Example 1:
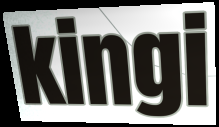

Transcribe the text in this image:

kingi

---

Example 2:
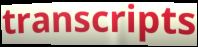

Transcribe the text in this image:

transcripts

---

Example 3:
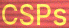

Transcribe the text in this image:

CSPs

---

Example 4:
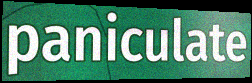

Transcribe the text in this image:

paniculate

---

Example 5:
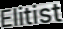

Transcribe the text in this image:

Elitist